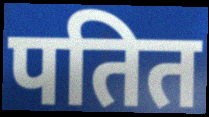
पतित